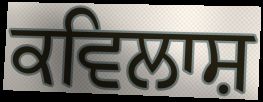
ਕਵਿਲਾਸ਼